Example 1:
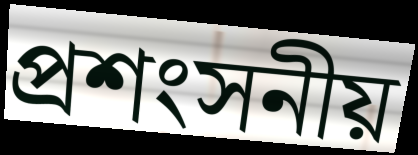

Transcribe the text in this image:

প্ৰশংসনীয়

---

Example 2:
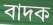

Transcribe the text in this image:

বাদক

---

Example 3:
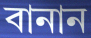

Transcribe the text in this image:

বানান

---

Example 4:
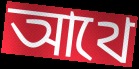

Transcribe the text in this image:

আথে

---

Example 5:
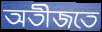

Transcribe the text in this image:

অতীজতে